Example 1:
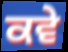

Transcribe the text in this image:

ਕਵੇ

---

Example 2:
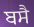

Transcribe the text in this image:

ਬਸੈ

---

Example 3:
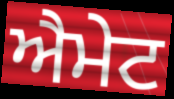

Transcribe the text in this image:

ਐਮੇਟ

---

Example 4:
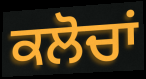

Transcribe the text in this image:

ਕਲੋਚਾਂ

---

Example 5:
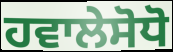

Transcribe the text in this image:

ਹਵਾਲੇਸੋਧੋ